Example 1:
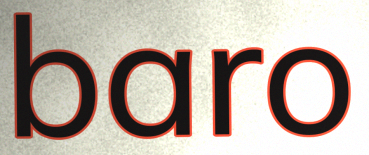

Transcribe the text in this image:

baro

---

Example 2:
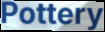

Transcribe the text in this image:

Pottery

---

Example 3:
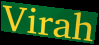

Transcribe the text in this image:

Virah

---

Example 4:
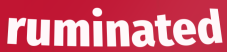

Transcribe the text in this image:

ruminated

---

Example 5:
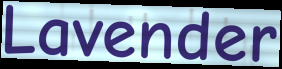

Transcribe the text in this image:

Lavender